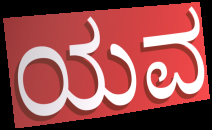
ಯವ